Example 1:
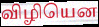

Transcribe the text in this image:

விழியென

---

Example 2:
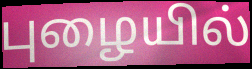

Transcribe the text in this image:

புழையில்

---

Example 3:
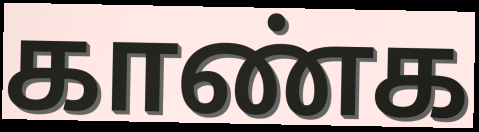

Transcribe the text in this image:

காண்க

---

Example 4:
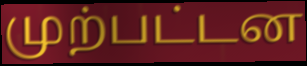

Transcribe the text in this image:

முற்பட்டன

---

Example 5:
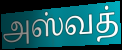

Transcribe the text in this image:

அஸ்வத்